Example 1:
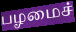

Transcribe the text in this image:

பழமைச்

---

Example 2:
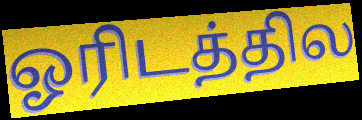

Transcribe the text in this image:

ஓரிடத்தில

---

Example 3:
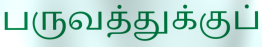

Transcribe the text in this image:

பருவத்துக்குப்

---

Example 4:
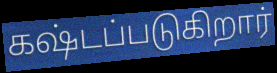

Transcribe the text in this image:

கஷ்டப்படுகிறார்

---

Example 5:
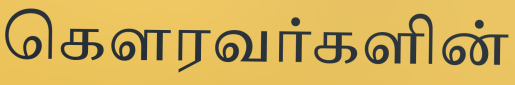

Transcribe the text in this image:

கௌரவர்களின்